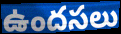
ఉందసలు